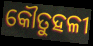
କୌତୁହଳୀ